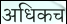
अधिकच